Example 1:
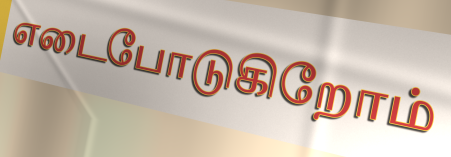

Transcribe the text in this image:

எடைபோடுகிறோம்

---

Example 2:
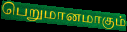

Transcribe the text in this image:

பெறுமானமாகும்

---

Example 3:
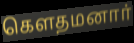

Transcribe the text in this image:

கெளதமனார்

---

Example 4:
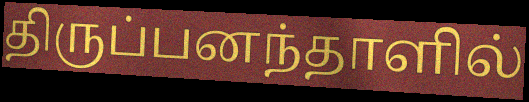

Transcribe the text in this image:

திருப்பனந்தாளில்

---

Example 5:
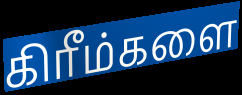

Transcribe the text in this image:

கிரீம்களை